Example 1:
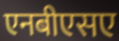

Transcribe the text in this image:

एनबीएसए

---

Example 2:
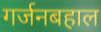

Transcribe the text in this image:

गर्जनबहाल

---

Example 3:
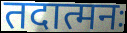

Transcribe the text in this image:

तदात्मनः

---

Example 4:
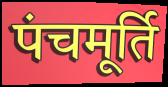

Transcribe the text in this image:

पंचमूर्ति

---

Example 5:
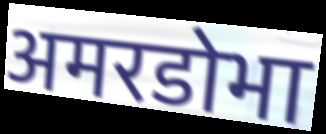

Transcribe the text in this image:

अमरडोभा